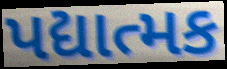
પદ્યાત્મક